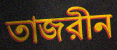
তাজরীন